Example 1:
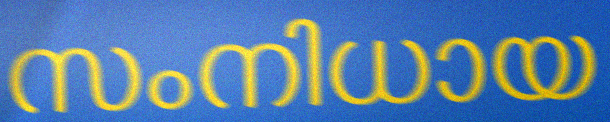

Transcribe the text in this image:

സംനിധായ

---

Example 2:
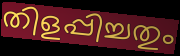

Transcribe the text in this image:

തിളപ്പിച്ചതും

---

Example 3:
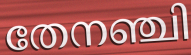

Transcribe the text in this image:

തേനഞ്ചി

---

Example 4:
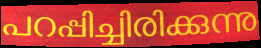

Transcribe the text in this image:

പറപ്പിച്ചിരിക്കുന്നു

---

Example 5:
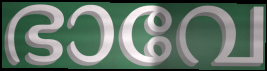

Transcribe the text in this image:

ഭാവേ